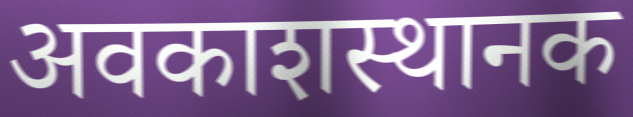
अवकाशस्थानक